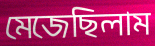
মেজেছিলাম